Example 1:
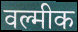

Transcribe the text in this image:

वल्मीक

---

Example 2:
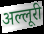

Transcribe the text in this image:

अल्लूरी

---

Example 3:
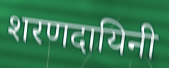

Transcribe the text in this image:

शरणदायिनी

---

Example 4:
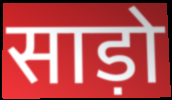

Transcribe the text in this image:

साड़ो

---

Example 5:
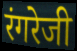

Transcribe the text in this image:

रंगरेजी